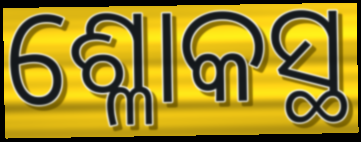
ଶ୍ଳୋକସ୍ଥ